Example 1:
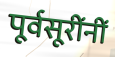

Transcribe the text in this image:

पूर्वसूरींनीं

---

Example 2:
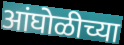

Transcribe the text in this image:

आंघोळीच्या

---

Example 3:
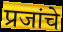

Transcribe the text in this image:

प्रजांचे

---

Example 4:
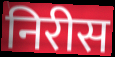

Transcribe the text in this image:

निरीस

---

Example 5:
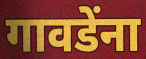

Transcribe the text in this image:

गावडेंना